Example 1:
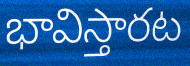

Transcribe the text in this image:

భావిస్తారట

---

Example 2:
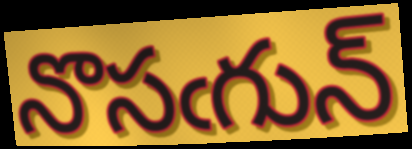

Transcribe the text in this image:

నొసఁగున్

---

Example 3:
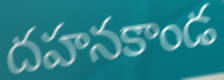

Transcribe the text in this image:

దహనకాండ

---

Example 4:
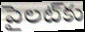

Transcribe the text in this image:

పైలట్‌కు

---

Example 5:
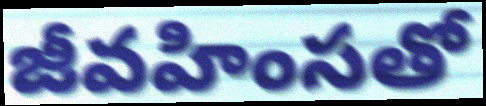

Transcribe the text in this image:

జీవహింసతో